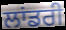
ਲਾਂਡਰੀ